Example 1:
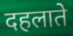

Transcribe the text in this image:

दहलाते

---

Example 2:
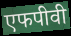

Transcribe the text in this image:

एफपीवी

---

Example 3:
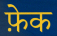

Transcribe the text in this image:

फ़ेक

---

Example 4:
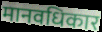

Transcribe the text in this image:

मानवधिकार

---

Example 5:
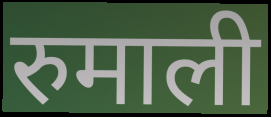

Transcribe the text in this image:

रुमाली